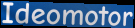
Ideomotor